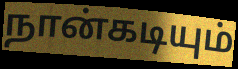
நான்கடியும்